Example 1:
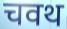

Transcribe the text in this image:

चवथ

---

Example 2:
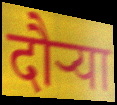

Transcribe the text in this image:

दौऱ्या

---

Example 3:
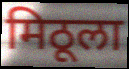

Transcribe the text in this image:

मिठूला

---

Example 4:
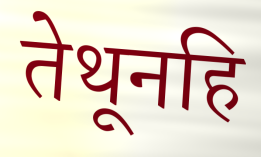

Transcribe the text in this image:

तेथूनहि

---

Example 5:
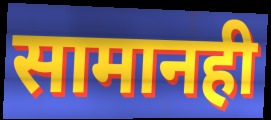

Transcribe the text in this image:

सामानही